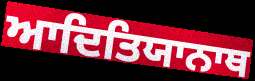
ਆਦਿਤਿਯਾਨਾਥ